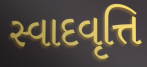
સ્વાદવૃત્તિ